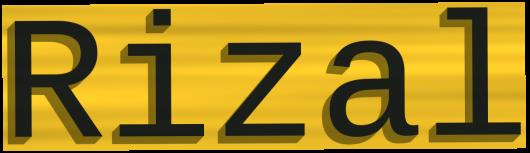
Rizal